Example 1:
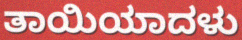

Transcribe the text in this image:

ತಾಯಿಯಾದಳು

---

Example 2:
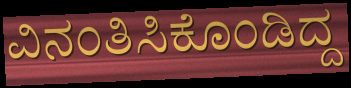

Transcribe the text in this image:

ವಿನಂತಿಸಿಕೊಂಡಿದ್ದ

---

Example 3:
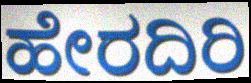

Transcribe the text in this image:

ಹೇರದಿರಿ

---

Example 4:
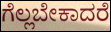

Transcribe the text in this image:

ಗೆಲ್ಲಬೇಕಾದರೆ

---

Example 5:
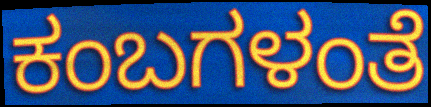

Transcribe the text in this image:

ಕಂಬಗಳಂತೆ